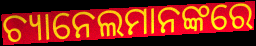
ଚ୍ୟାନେଲମାନଙ୍କରେ